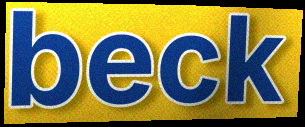
beck